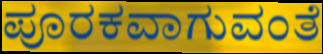
ಪೂರಕವಾಗುವಂತೆ